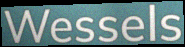
Wessels